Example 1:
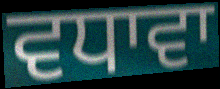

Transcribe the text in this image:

ਵਧਾਵਾ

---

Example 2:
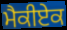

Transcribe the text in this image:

ਮੈਕੀਏਕ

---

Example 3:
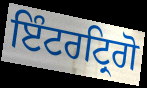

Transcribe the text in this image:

ਇੰਟਰਟ੍ਰਿਗੋ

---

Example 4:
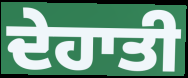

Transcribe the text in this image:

ਦੇਹਾਤੀ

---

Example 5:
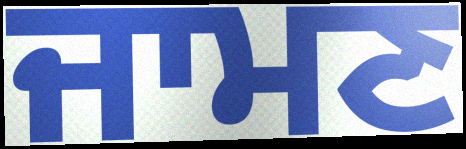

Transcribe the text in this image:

ਜਾਮਣ